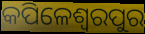
କପିଳେଶ୍ୱରପୁର